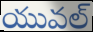
యువల్